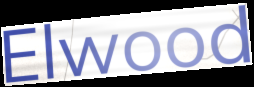
Elwood